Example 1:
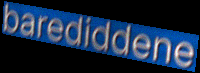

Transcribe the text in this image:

barediddene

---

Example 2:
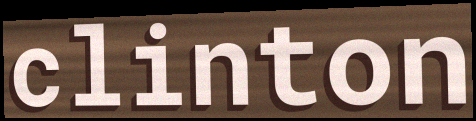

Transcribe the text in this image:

clinton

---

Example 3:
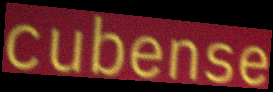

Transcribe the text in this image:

cubense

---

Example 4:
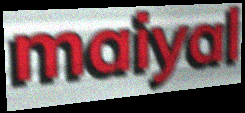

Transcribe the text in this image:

maiyal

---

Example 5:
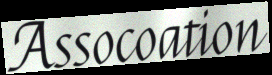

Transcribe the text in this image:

Assocoation